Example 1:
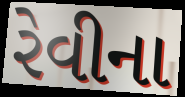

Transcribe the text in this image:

રેવીના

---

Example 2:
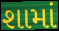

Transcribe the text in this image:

શામાં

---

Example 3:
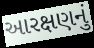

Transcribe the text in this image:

આરક્ષણનું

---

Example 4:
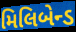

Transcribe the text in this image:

મિલિબેન્ડ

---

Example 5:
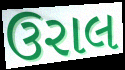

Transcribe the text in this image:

ઉરાલ